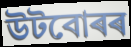
উটবোৰৰ